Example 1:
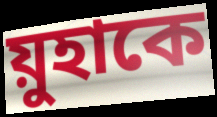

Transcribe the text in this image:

য়ুহাকে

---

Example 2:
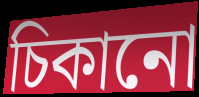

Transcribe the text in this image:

চিকানো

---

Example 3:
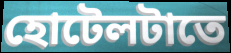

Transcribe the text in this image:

হোটেলটাতে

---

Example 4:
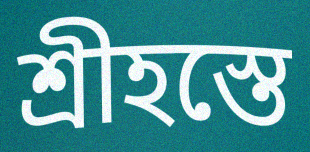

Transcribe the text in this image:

শ্রীহস্তে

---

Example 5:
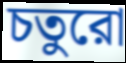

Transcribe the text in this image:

চতুরো